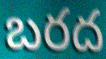
బరద